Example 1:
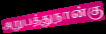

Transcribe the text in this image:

அறுபத்துநான்கு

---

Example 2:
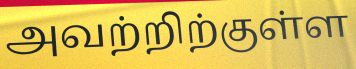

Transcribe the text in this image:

அவற்றிற்குள்ள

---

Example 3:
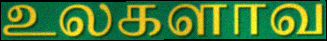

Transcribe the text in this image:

உலகளாவ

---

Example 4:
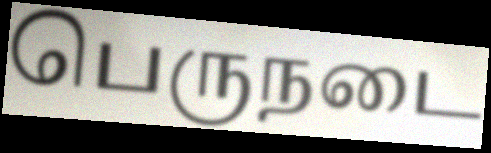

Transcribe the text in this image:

பெருநடை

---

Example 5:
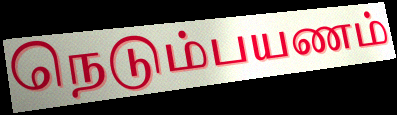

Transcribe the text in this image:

நெடும்பயணம்